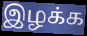
இழக்க